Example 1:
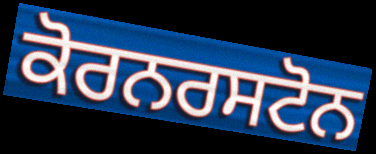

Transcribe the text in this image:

ਕੋਰਨਰਸਟੋਨ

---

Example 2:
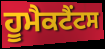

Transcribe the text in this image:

ਹੂਮੈਕਟੈਂਟਸ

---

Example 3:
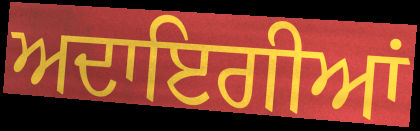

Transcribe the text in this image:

ਅਦਾਇਗੀਆਂ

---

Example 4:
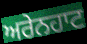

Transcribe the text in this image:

ਅਰੇਨਹਾਟ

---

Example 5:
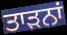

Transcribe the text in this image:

ਤਾੜਨਾਂ